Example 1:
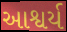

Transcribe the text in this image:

આશ્વર્ય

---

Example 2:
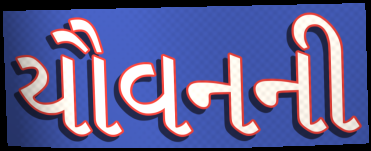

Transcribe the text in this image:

યૌવનની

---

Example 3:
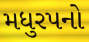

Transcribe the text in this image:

મધુરપનો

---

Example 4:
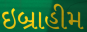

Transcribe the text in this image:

ઇબ્રાહીમ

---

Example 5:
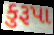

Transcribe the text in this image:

કુરૂપા